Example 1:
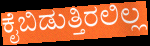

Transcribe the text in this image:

ಕೈಬಿಡುತ್ತಿರಲಿಲ್ಲ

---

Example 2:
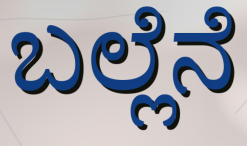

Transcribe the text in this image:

ಬಲ್ಲೆನೆ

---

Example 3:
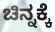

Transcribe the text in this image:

ಚಿನ್ನಕ್ಕೆ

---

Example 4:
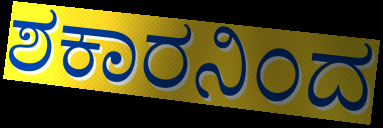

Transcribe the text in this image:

ಶಕಾರನಿಂದ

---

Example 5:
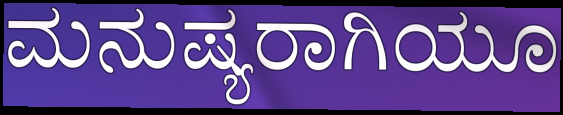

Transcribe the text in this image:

ಮನುಷ್ಯರಾಗಿಯೂ